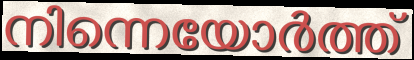
നിന്നെയോർത്ത്